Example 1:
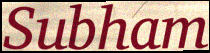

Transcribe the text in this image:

Subham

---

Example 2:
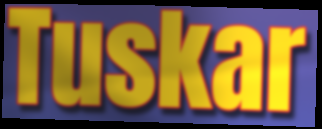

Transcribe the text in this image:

Tuskar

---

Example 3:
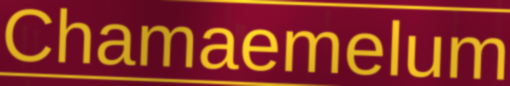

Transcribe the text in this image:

Chamaemelum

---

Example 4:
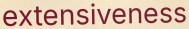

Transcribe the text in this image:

extensiveness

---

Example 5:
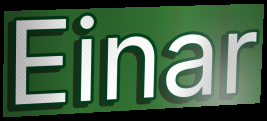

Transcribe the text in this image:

Einar